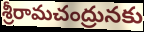
శ్రీరామచంద్రునకు